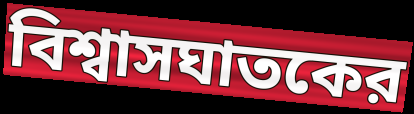
বিশ্বাসঘাতকের